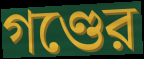
গণ্ডের